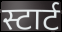
स्टार्ट